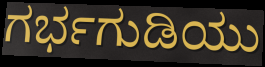
ಗರ್ಭಗುಡಿಯು